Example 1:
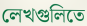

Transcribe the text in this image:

লেখগুলিতে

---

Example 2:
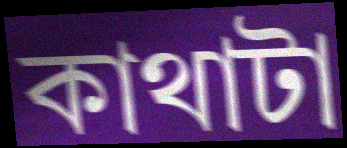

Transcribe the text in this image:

কাথাটা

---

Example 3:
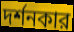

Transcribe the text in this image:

দর্শনকার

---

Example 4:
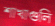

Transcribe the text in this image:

শাখাগুলি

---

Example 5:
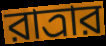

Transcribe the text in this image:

রাত্রার